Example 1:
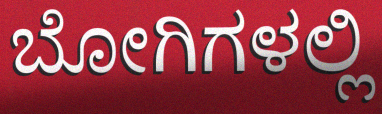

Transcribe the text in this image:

ಬೋಗಿಗಳಲ್ಲಿ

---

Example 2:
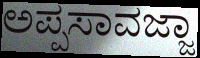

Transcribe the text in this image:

ಅಪ್ಪಸಾವಜ್ಜಾ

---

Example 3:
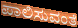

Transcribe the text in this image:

ಪಾಲಿಸುವಂತೆ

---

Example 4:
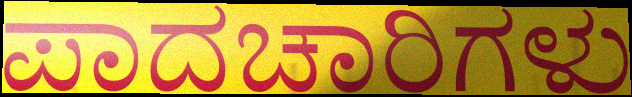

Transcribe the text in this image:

ಪಾದಚಾರಿಗಳು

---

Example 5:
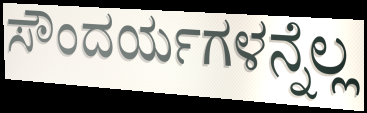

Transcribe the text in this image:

ಸೌಂದರ್ಯಗಳನ್ನೆಲ್ಲ